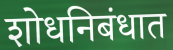
शोधनिबंधात